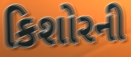
કિશોરની